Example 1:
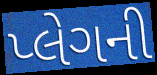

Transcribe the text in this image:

પ્લેગની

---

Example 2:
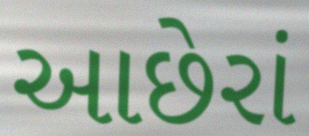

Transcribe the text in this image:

આછેરાં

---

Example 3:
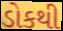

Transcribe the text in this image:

ડોકથી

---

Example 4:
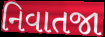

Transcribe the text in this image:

નિવાતજા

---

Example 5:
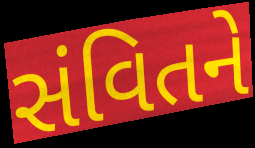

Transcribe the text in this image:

સંવિતને